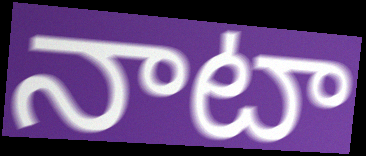
నాటా